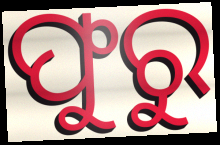
ଫୁରୁ